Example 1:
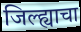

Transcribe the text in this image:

जिल्ह्याचा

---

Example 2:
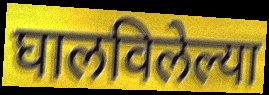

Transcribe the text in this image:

घालविलेल्या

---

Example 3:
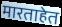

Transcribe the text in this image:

मारताहेत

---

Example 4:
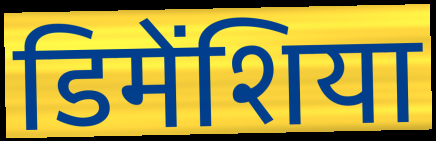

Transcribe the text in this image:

डिमेंशिया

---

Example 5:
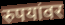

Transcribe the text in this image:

रुपयांवर